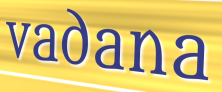
vadana